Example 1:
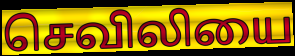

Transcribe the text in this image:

செவிலியை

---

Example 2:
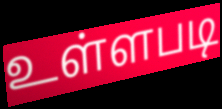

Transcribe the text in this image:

உள்ளபடி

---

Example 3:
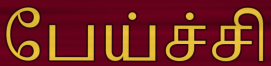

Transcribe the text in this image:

பேய்ச்சி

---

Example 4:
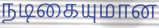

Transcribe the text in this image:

நடிகையுமான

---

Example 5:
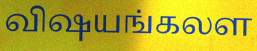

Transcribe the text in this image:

விஷயங்கலள